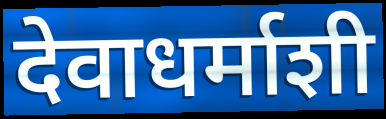
देवाधर्माशी